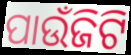
ପାଉଁଜିଟି